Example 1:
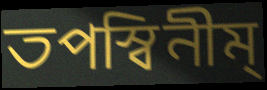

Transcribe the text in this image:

তপস্বিনীম্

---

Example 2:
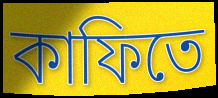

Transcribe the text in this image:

কাফিতে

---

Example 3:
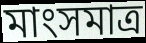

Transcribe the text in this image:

মাংসমাত্র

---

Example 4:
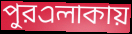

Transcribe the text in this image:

পুরএলাকায়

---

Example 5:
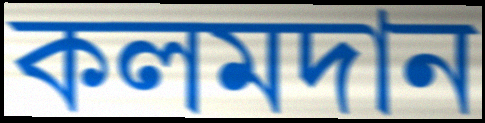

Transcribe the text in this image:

কলমদান